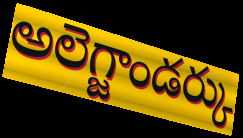
అలెగ్జాండర్కు